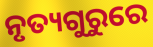
ନୃତ୍ୟଗୁରୁରେ